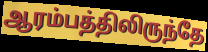
ஆரம்பத்திலிருந்தே